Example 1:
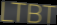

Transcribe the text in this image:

LTBT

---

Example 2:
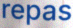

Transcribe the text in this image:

repas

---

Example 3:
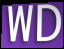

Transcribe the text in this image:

WD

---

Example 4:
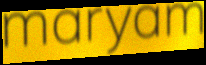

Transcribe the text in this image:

maryam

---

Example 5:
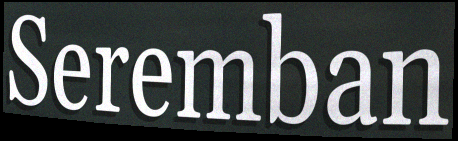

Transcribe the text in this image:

Seremban